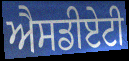
ਐਸਡੀਏਟੀ